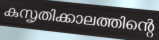
കുസൃതിക്കാലത്തിന്റെ